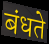
बंधते